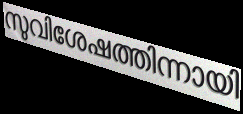
സുവിശേഷത്തിന്നായി